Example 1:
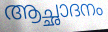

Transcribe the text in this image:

ആച്ഛാദനം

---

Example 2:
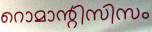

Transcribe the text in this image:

റൊമാന്റിസിസം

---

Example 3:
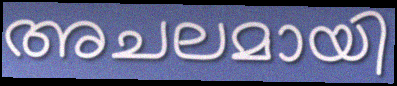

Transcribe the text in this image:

അചലമായി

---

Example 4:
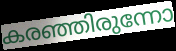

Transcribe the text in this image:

കരഞ്ഞിരുന്നോ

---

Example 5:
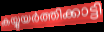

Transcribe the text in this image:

കയ്യുയർത്തിക്കാട്ടി